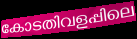
കോടതിവളപ്പിലെ